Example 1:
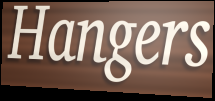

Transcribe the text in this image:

Hangers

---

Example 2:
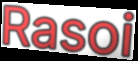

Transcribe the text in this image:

Rasoi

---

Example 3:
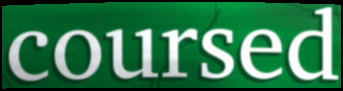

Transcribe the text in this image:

coursed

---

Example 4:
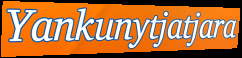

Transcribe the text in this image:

Yankunytjatjara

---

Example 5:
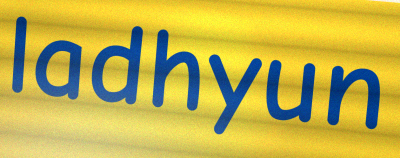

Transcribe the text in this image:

ladhyun